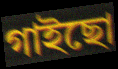
গাইছো